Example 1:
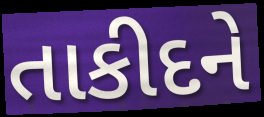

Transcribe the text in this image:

તાકીદને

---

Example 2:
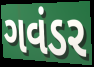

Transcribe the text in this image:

ગવંડર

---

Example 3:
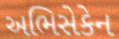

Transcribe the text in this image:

અભિસેકેન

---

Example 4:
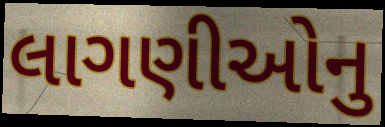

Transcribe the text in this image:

લાગણીઓનુ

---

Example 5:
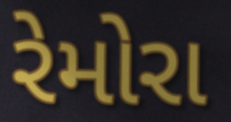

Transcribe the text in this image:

રેમોરા